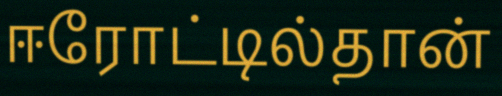
ஈரோட்டில்தான்